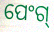
ପେଂଗ୍